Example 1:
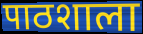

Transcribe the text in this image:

पाठशाला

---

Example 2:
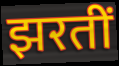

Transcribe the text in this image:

झरतीं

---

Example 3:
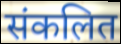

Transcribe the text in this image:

संकलित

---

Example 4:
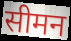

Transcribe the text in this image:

सीमन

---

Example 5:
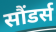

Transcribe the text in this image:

सौंडर्स